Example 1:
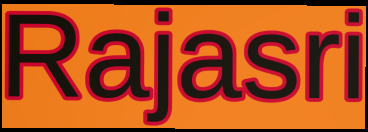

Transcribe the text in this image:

Rajasri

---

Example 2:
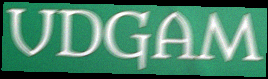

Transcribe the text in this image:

UDGAM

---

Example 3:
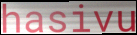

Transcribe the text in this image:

hasivu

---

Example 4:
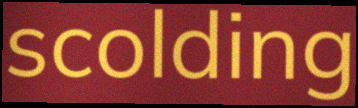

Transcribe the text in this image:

scolding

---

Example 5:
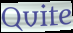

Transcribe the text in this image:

Quite